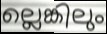
ല്ലെങ്കിലും